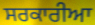
ਸਰਕਾਰੀਆ